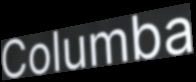
Columba